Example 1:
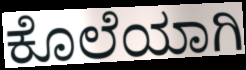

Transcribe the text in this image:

ಕೊಲೆಯಾಗಿ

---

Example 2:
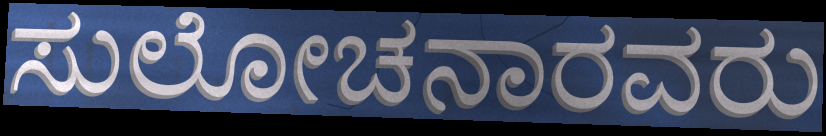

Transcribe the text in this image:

ಸುಲೋಚನಾರವರು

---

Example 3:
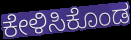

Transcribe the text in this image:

ಕೇಳಿಸಿಕೊಂಡ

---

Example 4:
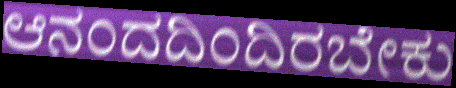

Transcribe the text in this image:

ಆನಂದದಿಂದಿರಬೇಕು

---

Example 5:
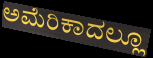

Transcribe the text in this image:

ಅಮೆರಿಕಾದಲ್ಲೂ